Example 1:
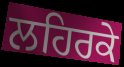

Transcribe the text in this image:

ਲਹਿਰਕੇ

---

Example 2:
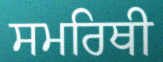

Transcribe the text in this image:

ਸਮਰਿਥੀ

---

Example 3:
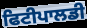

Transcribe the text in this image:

ਫਿਟੀਪਾਲਡੀ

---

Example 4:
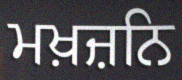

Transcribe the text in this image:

ਮਖ਼ਜ਼ਨਿ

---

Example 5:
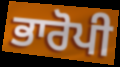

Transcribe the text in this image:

ਭਾਰੋਪੀ